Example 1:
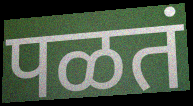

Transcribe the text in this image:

पळतं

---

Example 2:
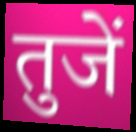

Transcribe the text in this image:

तुजें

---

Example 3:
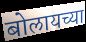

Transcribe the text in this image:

बोलायच्या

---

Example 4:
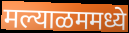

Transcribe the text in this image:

मल्याळममध्ये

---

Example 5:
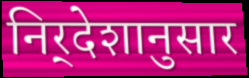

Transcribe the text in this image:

निर्देशानुसार